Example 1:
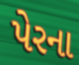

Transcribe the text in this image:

પેરના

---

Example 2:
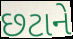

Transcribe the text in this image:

છટાને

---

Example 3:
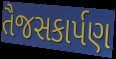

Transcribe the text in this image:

તૈજસકાર્પણ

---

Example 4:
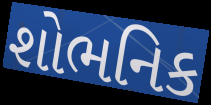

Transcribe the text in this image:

શોભનિક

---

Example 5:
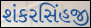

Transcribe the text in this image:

શંકરસિંહજી